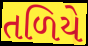
તળિયે